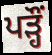
ਪੜ੍ਹੌਂ